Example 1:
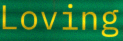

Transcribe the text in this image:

Loving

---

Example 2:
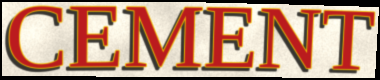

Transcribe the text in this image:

CEMENT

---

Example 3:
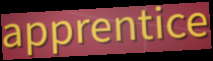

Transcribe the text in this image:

apprentice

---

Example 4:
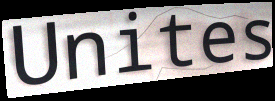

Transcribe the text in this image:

Unites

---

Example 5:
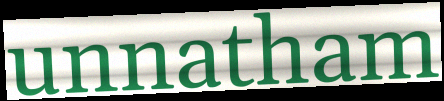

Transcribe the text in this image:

unnatham